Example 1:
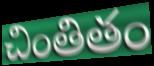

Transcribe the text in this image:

చింతితం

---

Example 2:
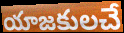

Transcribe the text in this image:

యాజకులచే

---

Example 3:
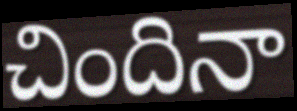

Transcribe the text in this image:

చిందినా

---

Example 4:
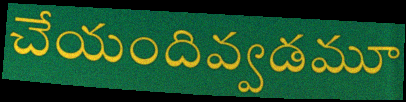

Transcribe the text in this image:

చేయందివ్వడమూ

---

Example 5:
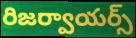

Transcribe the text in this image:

రిజర్వాయర్స్